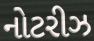
નોટરીઝ